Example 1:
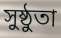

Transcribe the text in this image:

সুষ্ঠুতা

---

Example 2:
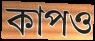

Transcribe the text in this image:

কাপও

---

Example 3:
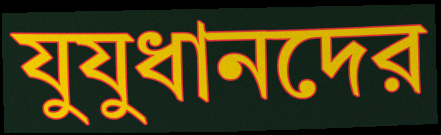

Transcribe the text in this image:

যুযুধানদের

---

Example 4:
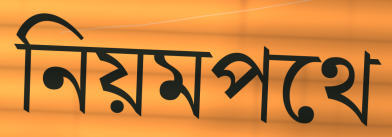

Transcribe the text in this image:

নিয়মপথে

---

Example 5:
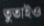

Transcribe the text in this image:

তুতাইও